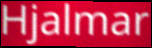
Hjalmar